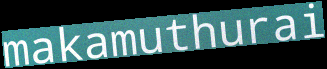
makamuthurai